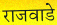
राजवाडे